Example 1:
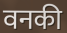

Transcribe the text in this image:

वनकी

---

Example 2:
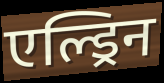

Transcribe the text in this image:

एल्ड्रिन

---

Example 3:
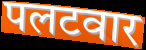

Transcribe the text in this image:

पलटवार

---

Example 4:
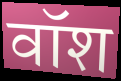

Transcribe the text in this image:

वॉश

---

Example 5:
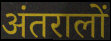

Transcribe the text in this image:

अंतरालों